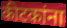
कीटकांना